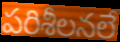
పరిశీలనలే